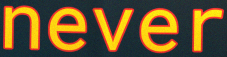
never